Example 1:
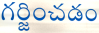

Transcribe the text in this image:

గర్జించడం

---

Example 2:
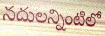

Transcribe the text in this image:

నదులన్నింటిలో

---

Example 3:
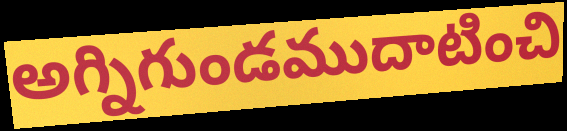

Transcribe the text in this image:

అగ్నిగుండముదాటించి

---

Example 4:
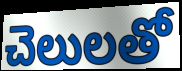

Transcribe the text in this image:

చెలులతో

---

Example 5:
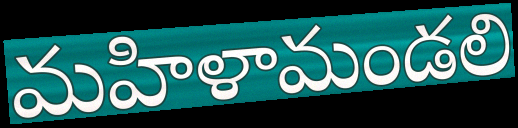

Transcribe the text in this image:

మహిళామండలి